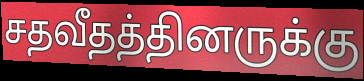
சதவீதத்தினருக்கு